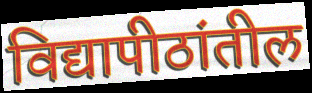
विद्यापीठांतील